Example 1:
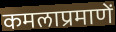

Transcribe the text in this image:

कमलाप्रमाणें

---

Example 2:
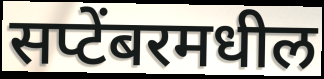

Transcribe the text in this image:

सप्टेंबरमधील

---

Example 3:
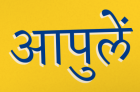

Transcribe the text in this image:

आपुलें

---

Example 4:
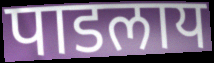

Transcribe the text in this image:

पाडलाय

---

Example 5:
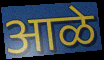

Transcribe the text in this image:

आळे